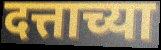
दत्ताच्या